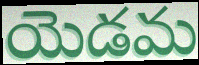
యెడమ